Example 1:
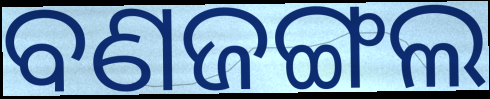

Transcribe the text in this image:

ବଣଜଙ୍ଗଲ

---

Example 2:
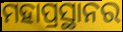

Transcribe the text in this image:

ମହାପ୍ରସ୍ଥାନର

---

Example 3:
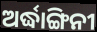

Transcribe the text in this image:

ଅର୍ଦ୍ଧାଙ୍ଗିନୀ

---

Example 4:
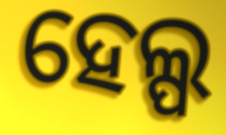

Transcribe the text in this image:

ହେଲ୍ପ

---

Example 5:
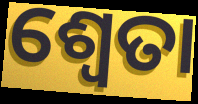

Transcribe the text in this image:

ଶ୍ୱେତା